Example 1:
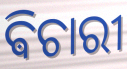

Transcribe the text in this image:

ଵିଚାରୀ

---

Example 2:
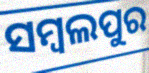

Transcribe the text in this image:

ସମ୍ବଲପୁର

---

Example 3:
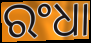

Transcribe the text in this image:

ରଂଧା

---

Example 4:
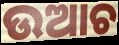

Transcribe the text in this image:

ଉଆଚ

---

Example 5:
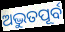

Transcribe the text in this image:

ଅଦ୍ଭୁତପୂର୍ବ